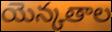
యెన్కతాల